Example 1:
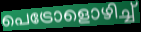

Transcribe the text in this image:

പെട്രോളൊഴിച്ച്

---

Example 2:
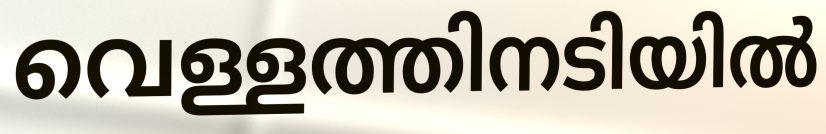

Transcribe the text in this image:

വെള്ളത്തിനടിയിൽ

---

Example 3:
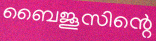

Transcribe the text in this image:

ബൈജൂസിന്റെ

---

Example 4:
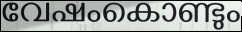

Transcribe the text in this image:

വേഷംകൊണ്ടും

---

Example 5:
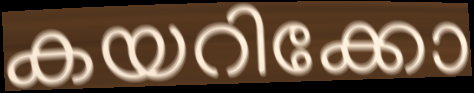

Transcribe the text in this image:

കയറിക്കോ